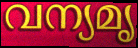
വന്യമൃ